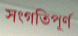
সংগতিপূর্ণ